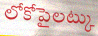
లోకోపైలట్కు